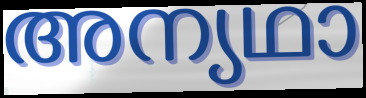
അന്യഥാ